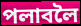
পলাবলৈ